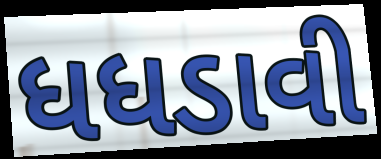
ધધડાવી